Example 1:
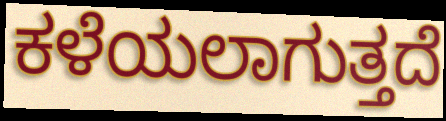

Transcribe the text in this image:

ಕಳೆಯಲಾಗುತ್ತದೆ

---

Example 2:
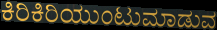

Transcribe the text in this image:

ಕಿರಿಕಿರಿಯುಂಟುಮಾಡುವ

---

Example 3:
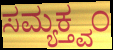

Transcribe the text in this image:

ಸಮ್ಯಕ್ತ್ವಂ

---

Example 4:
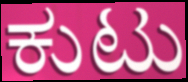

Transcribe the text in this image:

ಕುಟು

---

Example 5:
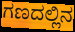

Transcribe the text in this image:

ಗಣದಲ್ಲಿನ